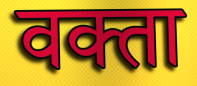
वक्ता